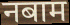
नबाम